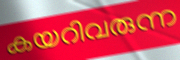
കയറിവരുന്ന